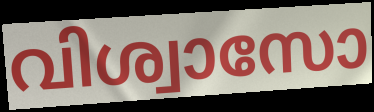
വിശ്വാസോ